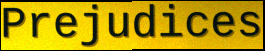
Prejudices